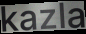
kazla